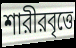
শারীরবৃত্তে